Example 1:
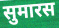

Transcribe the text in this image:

सुमारस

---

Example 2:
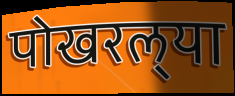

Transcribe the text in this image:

पोखरल्या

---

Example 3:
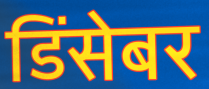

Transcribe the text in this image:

डिंसेबर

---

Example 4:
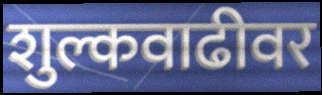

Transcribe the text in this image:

शुल्कवाढीवर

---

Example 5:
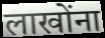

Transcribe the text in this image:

लाखोंना